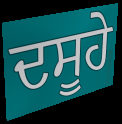
ਦਸੂਹੇ